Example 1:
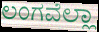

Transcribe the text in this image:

ಲಂಗವೆಲ್ಲಾ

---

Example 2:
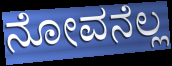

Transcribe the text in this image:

ನೋವನೆಲ್ಲ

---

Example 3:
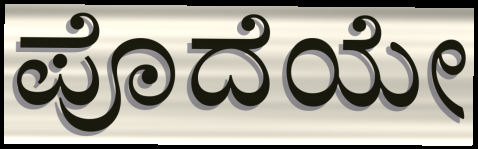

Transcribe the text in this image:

ಪೊದೆಯೇ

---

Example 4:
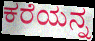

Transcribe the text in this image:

ಕರೆಯನ್ನ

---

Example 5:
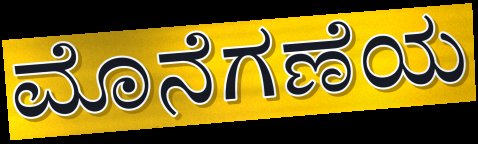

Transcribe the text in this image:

ಮೊನೆಗಣೆಯ